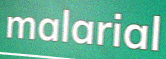
malarial